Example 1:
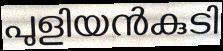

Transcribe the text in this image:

പുളിയൻകുടി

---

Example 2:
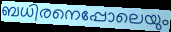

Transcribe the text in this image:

ബധിരനെപ്പോലെയും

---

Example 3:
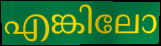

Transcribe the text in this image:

എങ്കിലോ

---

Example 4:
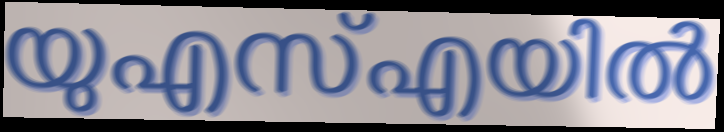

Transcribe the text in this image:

യുഎസ്എയിൽ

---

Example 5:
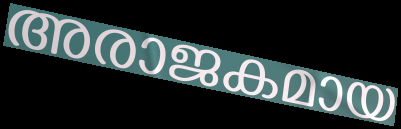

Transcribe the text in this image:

അരാജകമായ